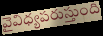
వైవిధ్యపరుస్తుంది